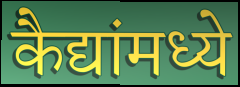
कैद्यांमध्ये